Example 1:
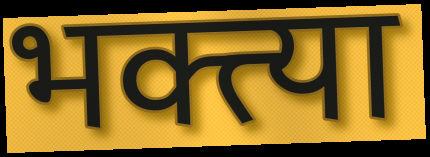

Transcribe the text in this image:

भक्त्या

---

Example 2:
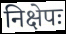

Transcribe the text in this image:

निक्षेपः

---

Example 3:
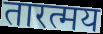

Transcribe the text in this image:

तारत्मय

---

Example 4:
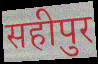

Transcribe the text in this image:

सहीपुर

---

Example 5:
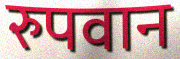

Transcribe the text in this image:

रुपवान